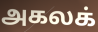
அகலக்